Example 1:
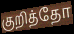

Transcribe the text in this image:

குறித்தோ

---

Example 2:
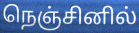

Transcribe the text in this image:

நெஞ்சினில்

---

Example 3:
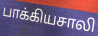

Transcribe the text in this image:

பாக்கியசாலி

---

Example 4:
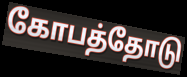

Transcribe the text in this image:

கோபத்தோடு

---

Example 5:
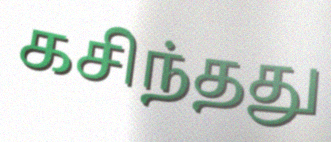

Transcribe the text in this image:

கசிந்தது